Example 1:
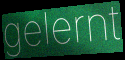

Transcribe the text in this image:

gelernt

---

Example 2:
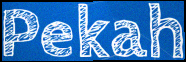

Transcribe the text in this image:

Pekah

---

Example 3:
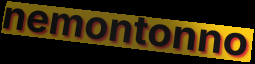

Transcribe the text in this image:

nemontonno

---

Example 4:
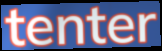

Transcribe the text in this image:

tenter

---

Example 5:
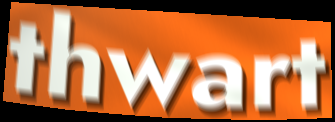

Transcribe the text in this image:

thwart